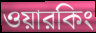
ওয়ারকিং